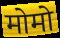
मोमो